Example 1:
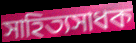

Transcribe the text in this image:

সাহিত্যসাধক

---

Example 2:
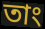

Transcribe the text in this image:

তাং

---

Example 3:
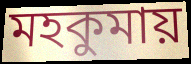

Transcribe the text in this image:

মহকুমায়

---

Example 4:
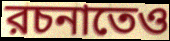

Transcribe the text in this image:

রচনাতেও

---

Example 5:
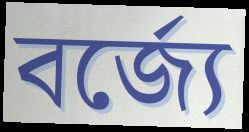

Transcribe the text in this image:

বর্জ্যে